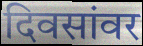
दिवसांवर